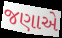
જણાએ